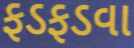
ફડફડવા